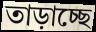
তাড়াচ্ছে